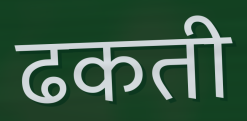
ढकती